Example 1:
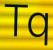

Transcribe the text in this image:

Tq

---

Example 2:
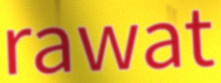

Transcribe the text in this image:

rawat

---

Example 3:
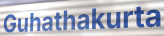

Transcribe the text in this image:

Guhathakurta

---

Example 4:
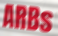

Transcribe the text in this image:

ARBs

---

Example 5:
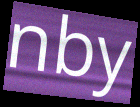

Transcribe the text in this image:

nby